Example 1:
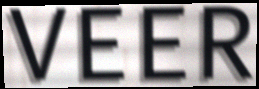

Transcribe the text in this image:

VEER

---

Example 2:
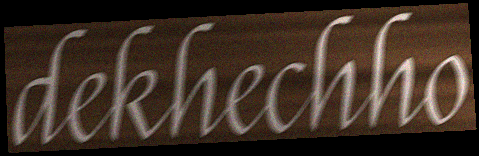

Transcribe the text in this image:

dekhechho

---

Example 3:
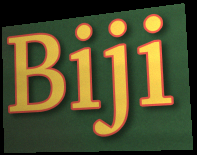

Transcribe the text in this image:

Biji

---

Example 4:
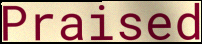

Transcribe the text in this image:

Praised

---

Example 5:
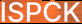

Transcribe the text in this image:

ISPCK